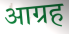
आग्रह